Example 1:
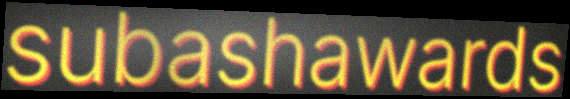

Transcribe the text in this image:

subashawards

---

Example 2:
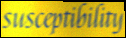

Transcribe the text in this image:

susceptibility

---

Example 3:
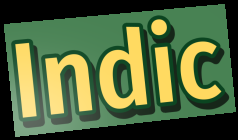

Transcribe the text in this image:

Indic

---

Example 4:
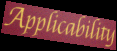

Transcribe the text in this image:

Applicability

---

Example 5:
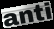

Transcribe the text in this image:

anti